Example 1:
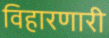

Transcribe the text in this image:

विहारणारी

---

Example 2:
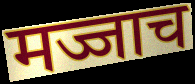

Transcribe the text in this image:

मज्जाच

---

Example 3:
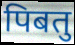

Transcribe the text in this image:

पिबतु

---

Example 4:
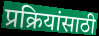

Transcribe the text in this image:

प्रक्रियांसाठी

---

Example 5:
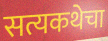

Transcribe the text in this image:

सत्यकथेचा